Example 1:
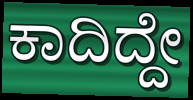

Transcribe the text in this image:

ಕಾದಿದ್ದೇ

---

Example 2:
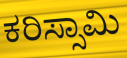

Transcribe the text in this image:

ಕರಿಸ್ಸಾಮಿ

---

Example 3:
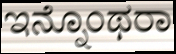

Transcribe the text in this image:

ಇನ್ನೊಂಥರಾ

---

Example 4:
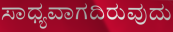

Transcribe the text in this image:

ಸಾಧ್ಯವಾಗದಿರುವುದು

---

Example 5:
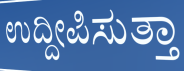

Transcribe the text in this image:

ಉದ್ದೀಪಿಸುತ್ತಾ